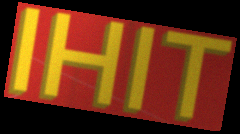
IHIT